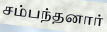
சம்பந்தனார்